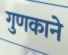
गुणकाने